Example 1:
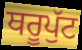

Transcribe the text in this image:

ਥਰੂਪੁੱਟ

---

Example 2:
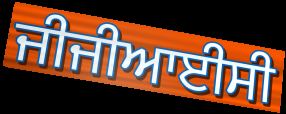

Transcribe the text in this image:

ਜੀਜੀਆਈਸੀ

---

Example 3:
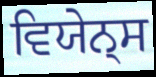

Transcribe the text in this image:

ਵਿਯੇਨ੍ਸ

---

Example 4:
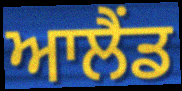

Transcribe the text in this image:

ਆਲੈਂਡ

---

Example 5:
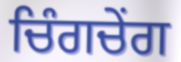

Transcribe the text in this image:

ਚਿੰਗਚੇਂਗ